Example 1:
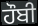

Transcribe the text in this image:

ਹੌਬੀ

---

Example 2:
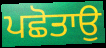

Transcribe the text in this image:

ਪਛੋਤਾਉ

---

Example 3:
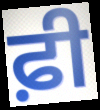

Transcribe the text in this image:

ਫ਼ੀ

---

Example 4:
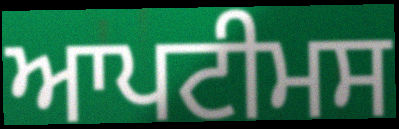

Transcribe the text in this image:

ਆਪਟੀਮਸ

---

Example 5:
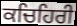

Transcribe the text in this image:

ਕਚਿਹਿਰੀ